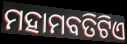
ମହାମବତିଟିଏ